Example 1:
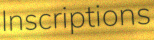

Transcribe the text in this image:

Inscriptions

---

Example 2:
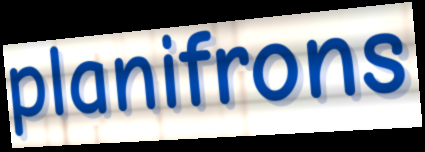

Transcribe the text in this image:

planifrons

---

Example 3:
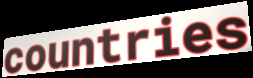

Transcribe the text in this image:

countries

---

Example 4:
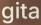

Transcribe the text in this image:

gita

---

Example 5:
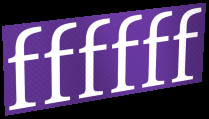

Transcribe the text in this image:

ffffff